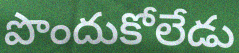
పొందుకోలేడు